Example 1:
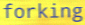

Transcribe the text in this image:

forking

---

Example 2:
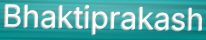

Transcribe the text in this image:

Bhaktiprakash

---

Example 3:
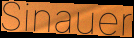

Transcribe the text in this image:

Sinauer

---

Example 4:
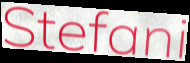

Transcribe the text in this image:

Stefani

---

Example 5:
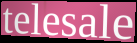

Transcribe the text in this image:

telesale